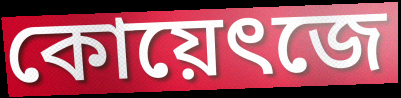
কোয়েৎজে